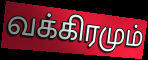
வக்கிரமும்